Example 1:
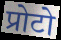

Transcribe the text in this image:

प्रोटो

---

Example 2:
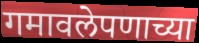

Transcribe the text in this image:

गमावलेपणाच्या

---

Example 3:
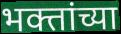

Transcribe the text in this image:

भक्तांच्या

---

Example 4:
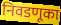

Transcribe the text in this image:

निवडणूका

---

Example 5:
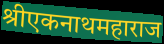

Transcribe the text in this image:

श्रीएकनाथमहाराज